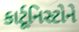
કાર્ટૂનિસ્ટોને